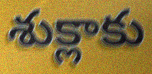
శుక్లాకు